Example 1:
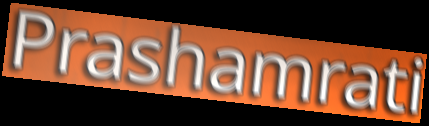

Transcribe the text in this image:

Prashamrati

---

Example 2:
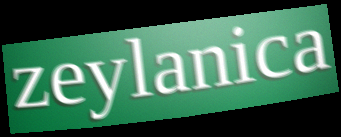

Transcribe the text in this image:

zeylanica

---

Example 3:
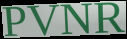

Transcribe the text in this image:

PVNR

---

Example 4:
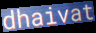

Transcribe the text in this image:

dhaivat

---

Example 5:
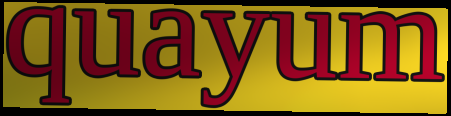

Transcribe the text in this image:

quayum